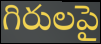
గిరులపై